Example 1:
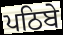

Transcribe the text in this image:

ਪਠਿਬੇ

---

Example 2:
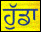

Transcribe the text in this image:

ਹੁੱਡਾ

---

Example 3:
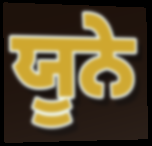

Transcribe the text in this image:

ਯੂਨੇ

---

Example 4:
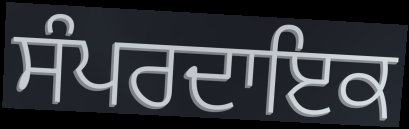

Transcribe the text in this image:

ਸੰਪਰਦਾਇਕ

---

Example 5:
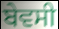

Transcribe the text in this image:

ਬੇਵਸੀ